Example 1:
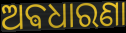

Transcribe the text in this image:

ଅଵଧାରଣା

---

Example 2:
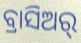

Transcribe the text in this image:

ବ୍ରାସିଅର୍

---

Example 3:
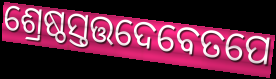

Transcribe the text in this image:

ଶ୍ରେଷ୍ଠସ୍ତତ୍ତଦେବେତପେ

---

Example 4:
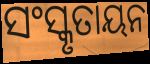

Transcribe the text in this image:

ସଂସ୍କୃତାୟନ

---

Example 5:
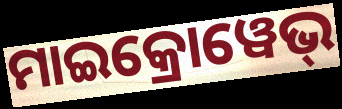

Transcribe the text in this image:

ମାଇକ୍ରୋୱେଭ୍